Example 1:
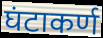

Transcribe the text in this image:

घंटाकर्ण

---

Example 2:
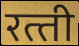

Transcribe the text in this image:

रत्‍ती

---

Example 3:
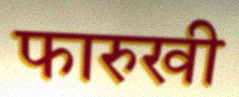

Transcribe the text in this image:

फारुखी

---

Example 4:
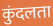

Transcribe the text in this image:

कुंदलता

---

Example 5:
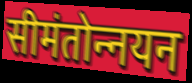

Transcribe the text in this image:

सीमंतोन्नयन